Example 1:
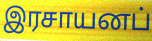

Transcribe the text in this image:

இரசாயனப்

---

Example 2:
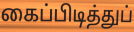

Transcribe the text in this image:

கைப்பிடித்துப்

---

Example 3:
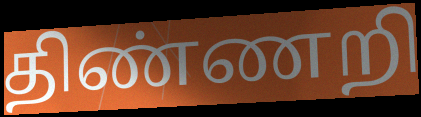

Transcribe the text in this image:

திண்ணறி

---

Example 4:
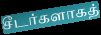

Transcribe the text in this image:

சீடர்களாகத்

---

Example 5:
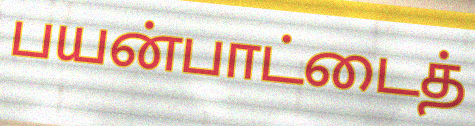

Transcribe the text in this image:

பயன்பாட்டைத்